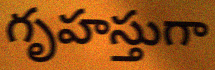
గృహస్తుగా